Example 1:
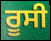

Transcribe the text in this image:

ਰੂਸੀ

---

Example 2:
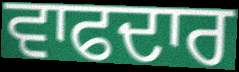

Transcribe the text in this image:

ਵਾਫਦਾਰ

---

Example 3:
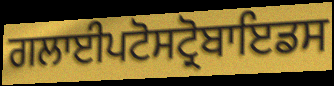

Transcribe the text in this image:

ਗਲਾਈਪਟੋਸਟ੍ਰੋਬਾਇਡਸ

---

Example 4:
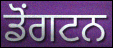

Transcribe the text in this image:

ਡੋਂਗਟਨ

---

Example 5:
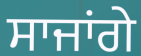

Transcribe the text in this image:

ਸਾਜਾਂਗੇ